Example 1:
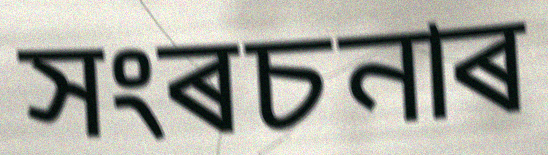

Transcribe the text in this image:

সংৰচনাৰ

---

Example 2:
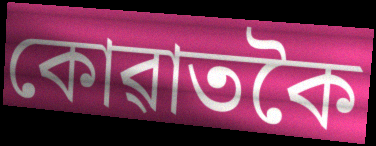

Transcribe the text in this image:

কোৱাতকৈ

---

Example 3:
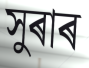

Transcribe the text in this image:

সুৰাৰ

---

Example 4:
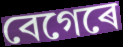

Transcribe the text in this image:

বেগেৰে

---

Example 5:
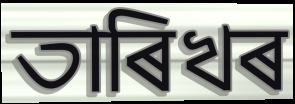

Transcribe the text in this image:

তাৰিখৰ